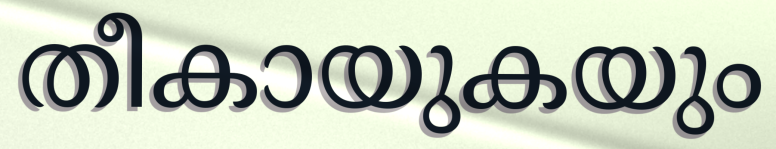
തീകായുകയും